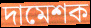
দামেশক